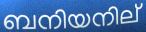
ബനിയനില്